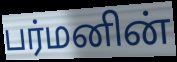
பர்மனின்